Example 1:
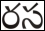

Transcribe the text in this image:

రస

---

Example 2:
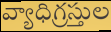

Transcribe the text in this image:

వ్యాధిగ్రస్తుల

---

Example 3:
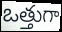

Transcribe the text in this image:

ఒత్తుగా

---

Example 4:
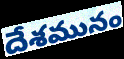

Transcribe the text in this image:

దేశమునం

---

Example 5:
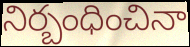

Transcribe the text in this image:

నిర్బంధించినా